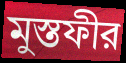
মুস্তফীর